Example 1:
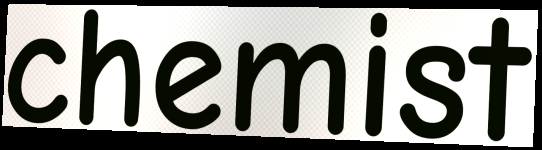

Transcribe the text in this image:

chemist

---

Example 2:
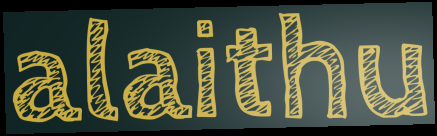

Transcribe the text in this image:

alaithu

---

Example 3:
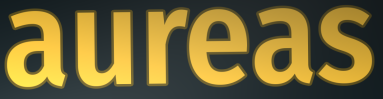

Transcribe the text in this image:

aureas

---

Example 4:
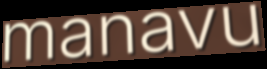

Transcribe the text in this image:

manavu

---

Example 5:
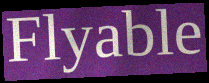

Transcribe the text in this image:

Flyable